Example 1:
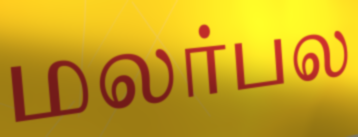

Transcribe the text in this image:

மலர்பல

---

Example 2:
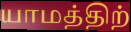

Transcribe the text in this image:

யாமத்திற்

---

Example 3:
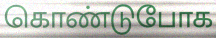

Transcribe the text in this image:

கொண்டுபோக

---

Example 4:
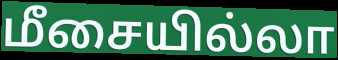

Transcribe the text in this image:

மீசையில்லா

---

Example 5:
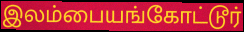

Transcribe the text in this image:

இலம்பையங்கோட்டூர்